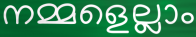
നമ്മളെല്ലാം